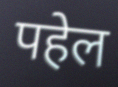
पहेल